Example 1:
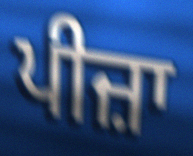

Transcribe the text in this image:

ਪੀਜ਼ਾ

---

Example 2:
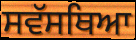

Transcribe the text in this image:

ਸਵੱਸਥਿਆ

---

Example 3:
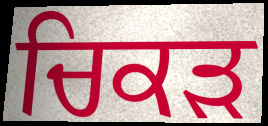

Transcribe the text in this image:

ਚਿਕੜ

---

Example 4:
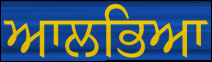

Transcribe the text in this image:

ਆਲਭਿਆ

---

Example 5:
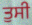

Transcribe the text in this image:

ਤੁਸੀ